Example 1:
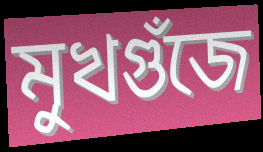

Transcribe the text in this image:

মুখগুঁজে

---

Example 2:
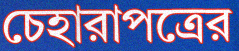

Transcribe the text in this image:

চেহারাপত্রের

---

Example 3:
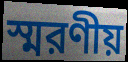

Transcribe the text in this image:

স্মরণীয়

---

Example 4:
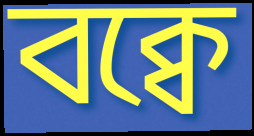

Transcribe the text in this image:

বক্বে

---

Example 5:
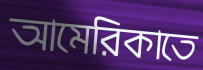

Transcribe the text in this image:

আমেরিকাতে